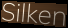
Silken